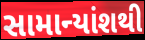
સામાન્યાંશથી